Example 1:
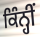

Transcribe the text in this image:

ਕਿੰਨ੍ਹੀਂ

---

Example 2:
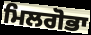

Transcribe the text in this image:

ਮਿਲਗੋਭਾ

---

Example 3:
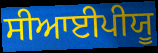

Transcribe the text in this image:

ਸੀਆਈਪੀਯੂ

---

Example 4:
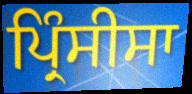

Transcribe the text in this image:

ਪ੍ਰਿੰਸੀਸਾ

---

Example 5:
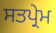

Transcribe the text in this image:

ਸਤਪ੍ਰੇਮ